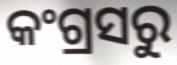
କଂଗ୍ରସରୁ